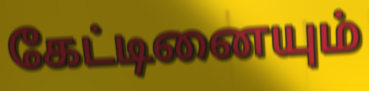
கேட்டினையும்